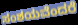
ಸಂಶಯವೆಂದರೆ